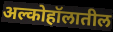
अल्कोहॉलातील